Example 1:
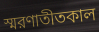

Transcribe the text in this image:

স্মরণাতীতকাল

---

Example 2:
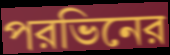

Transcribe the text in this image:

পরভিনের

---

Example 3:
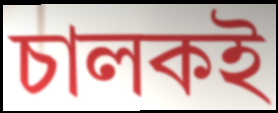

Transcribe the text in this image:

চালকই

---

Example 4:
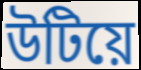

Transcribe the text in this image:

উটিয়ে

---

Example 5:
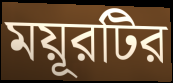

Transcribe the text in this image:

ময়ূরটির